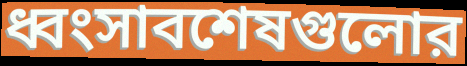
ধ্বংসাবশেষগুলোর